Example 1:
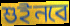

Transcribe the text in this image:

শুইনবে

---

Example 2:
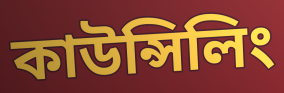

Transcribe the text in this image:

কাউন্সিলিং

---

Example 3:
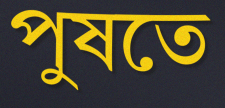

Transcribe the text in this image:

পুষতে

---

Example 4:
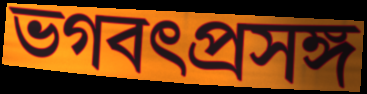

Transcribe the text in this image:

ভগবৎপ্রসঙ্গ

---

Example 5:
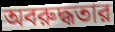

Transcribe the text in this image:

অবরুদ্ধতার